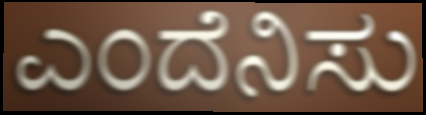
ಎಂದೆನಿಸು